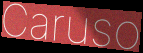
Caruso